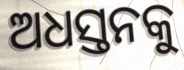
ଅଧସ୍ତନକୁ